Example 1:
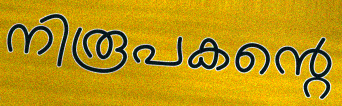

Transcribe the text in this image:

നിരൂപകന്റെ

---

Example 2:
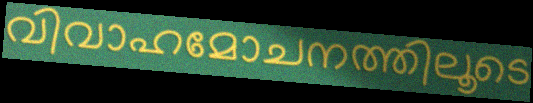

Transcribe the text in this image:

വിവാഹമോചനത്തിലൂടെ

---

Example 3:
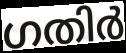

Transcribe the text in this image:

ഗതിർ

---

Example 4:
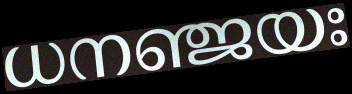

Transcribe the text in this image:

ധനഞ്ജയഃ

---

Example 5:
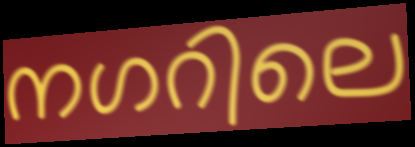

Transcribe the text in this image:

നഗറിലെ